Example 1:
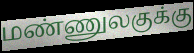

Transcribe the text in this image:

மண்ணுலகுக்கு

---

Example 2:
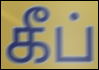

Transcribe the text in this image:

கீப்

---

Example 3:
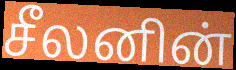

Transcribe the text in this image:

சீலனின்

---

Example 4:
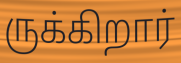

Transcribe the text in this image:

ருக்கிறார்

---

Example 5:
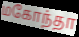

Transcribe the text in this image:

மகோந்தா